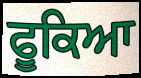
ਫੂਕਿਆ